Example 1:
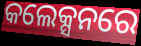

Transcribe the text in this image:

କଲେକ୍ସନରେ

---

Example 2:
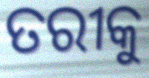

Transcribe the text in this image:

ତରୀକୁ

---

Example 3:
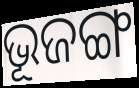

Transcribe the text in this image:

ଭୂଜଙ୍ଗ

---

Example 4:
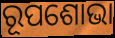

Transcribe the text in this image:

ରୂପଶୋଭା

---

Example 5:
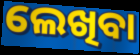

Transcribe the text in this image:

ଲେଖିବା